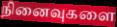
நினைவுகளை